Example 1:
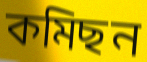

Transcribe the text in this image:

কমিছন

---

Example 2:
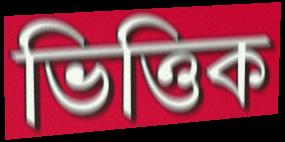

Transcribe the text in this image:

ভিত্তিক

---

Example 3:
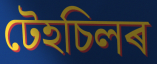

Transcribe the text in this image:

টেহচিলৰ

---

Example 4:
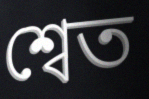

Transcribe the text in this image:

শ্বেত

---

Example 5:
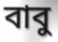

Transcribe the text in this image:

বাবু